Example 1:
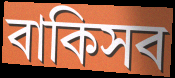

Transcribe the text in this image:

বাকিসব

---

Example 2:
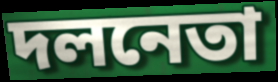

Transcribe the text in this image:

দলনেতা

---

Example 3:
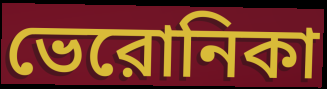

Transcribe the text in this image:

ভেরোনিকা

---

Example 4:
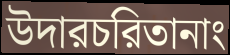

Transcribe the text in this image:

উদারচরিতানাং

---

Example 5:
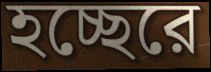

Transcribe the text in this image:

হচ্ছেরে